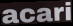
acari